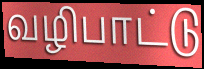
வழிபாட்டு